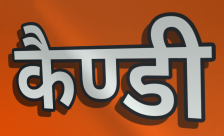
कैण्डी